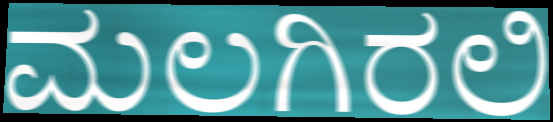
ಮಲಗಿರಲಿ